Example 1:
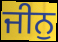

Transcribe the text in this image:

ਜੀਨੁ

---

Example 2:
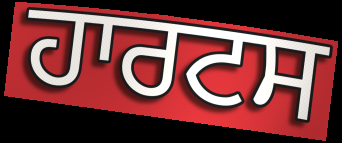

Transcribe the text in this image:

ਹਾਰਟਸ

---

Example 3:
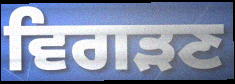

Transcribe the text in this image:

ਵਿਗੜਣ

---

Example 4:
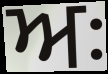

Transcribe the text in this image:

ਅਃ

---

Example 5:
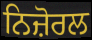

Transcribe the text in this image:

ਨਿਜ਼ੋਰਲ